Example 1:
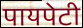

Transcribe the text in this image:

पायपेटी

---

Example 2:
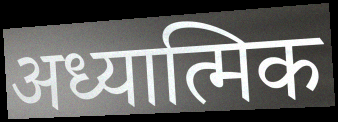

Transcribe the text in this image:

अध्यात्मिक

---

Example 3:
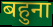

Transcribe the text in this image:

बहुना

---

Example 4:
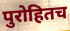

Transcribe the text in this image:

पुरोहितच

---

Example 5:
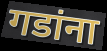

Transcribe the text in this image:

गडांना